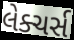
લેક્ચર્સ